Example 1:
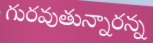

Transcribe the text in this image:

గురవుతున్నారన్న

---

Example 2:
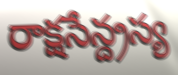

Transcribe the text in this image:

రాక్షసేన్ద్రస్య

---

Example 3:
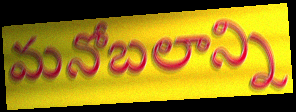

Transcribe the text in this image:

మనోబలాన్ని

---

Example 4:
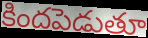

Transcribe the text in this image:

కిందపెడుతూ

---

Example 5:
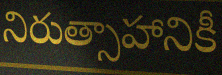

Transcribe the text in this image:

నిరుత్సాహానికీ